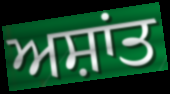
ਅਸ਼ਾਂਤ